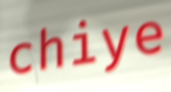
chiye